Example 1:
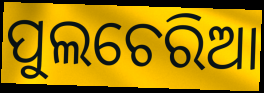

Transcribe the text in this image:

ପୁଲଚେରିଆ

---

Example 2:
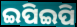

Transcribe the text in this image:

ଇପିଇପି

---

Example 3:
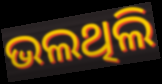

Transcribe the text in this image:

ଭଲଥିଲି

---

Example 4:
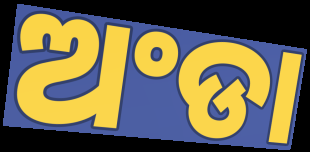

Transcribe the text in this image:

ଅଂଡା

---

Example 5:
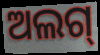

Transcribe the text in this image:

ଅଲଗ୍